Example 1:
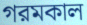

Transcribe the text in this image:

গরমকাল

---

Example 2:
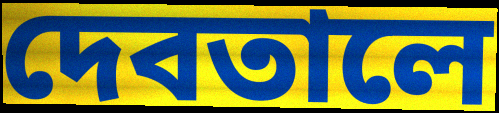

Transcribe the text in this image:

দেবতালে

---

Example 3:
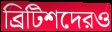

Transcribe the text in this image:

ব্রিটিশদেরও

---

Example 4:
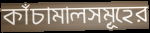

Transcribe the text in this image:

কাঁচামালসমূহের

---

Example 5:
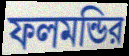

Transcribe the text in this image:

ফলমন্ডির